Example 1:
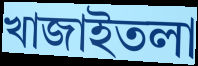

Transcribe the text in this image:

খাজাইতলা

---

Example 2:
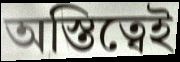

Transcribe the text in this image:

অস্তিত্বেই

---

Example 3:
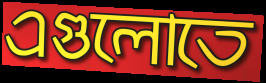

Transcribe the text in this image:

এগুলোতে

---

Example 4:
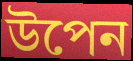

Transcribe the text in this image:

উপেন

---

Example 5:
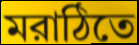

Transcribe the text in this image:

মরাঠিতে